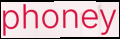
phoney